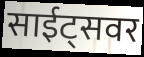
साईट्सवर